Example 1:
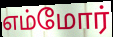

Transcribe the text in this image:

எம்மோர்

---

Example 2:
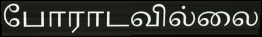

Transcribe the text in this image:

போராடவில்லை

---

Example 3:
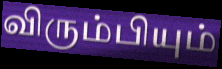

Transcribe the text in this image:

விரும்பியும்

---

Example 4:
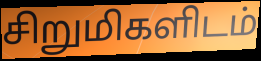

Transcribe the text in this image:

சிறுமிகளிடம்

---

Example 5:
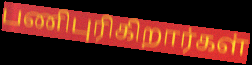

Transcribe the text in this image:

பணிபுரிகிறார்கள்